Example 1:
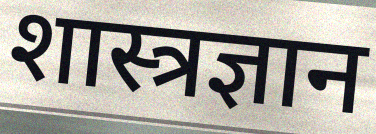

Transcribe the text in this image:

शास्त्रज्ञान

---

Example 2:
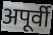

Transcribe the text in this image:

अपूर्वी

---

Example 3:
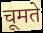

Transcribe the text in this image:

चूमते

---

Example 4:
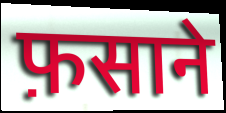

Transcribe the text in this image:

फ़साने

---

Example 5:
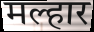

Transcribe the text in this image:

मल्हार